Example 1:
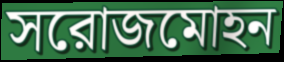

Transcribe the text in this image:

সরোজমোহন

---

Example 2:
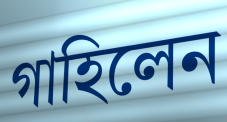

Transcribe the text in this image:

গাহিলেন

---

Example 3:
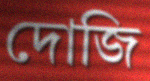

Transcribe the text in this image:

দোজি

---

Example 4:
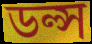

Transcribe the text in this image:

ডল্স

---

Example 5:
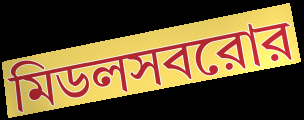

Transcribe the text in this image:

মিডলসবরোর